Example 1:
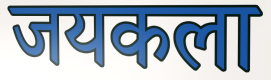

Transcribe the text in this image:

जयकला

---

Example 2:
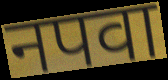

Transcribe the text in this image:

नपवा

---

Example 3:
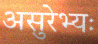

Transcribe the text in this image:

असुरेभ्यः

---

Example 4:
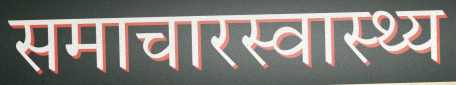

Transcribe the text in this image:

समाचारस्वास्थ्य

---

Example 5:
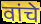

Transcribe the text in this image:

वांचे